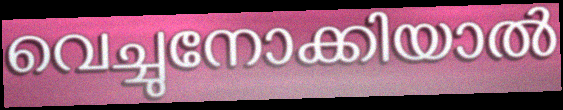
വെച്ചുനോക്കിയാൽ